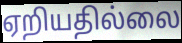
ஏறியதில்லை